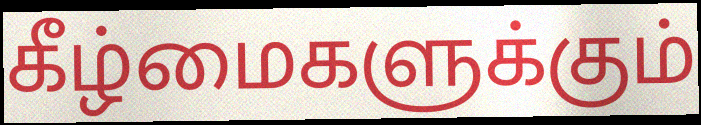
கீழ்மைகளுக்கும்